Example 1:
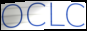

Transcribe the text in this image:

OCLC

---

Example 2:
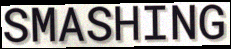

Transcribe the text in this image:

SMASHING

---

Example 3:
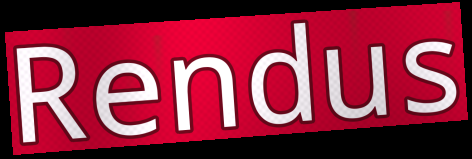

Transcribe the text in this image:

Rendus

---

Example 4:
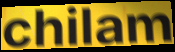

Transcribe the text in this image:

chilam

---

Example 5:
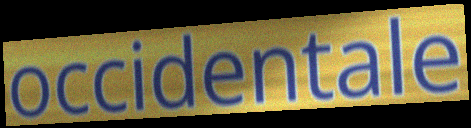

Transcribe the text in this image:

occidentale